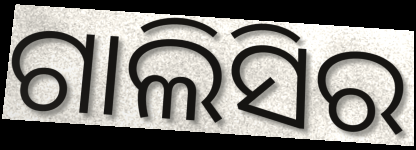
ଗାଲିସିର